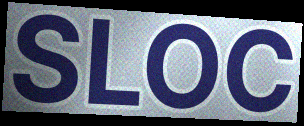
SLOC